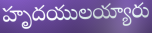
హృదయులయ్యారు